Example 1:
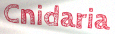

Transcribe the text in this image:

Cnidaria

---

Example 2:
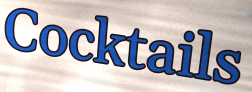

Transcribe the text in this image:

Cocktails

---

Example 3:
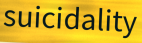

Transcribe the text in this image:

suicidality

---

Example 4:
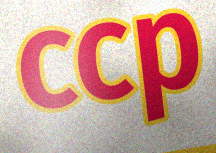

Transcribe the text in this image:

ccp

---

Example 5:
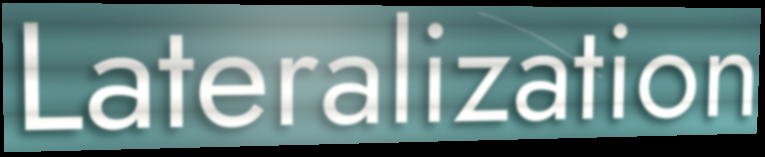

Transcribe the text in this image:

Lateralization